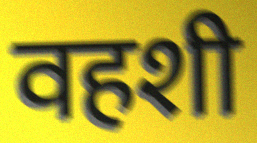
वहशी